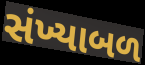
સંખ્યાબળ